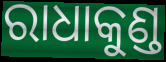
ରାଧାକୁଣ୍ଡ